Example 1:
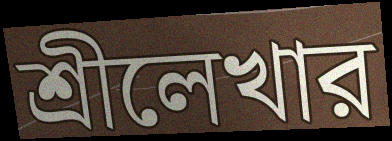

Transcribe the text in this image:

শ্রীলেখার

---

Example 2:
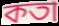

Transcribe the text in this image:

কতা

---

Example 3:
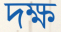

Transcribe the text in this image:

দক্ষ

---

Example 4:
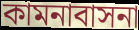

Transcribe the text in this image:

কামনাবাসনা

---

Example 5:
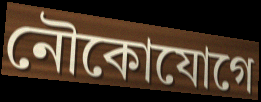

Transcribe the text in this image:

নৌকোযোগে